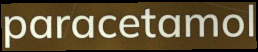
paracetamol